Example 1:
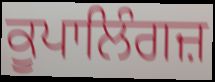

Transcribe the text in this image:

ਕੂਪਾਲਿੰਗਜ਼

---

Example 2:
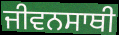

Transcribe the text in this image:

ਜੀਵਨਸਾਥੀ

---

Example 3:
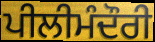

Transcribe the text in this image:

ਪੀਲੀਮੰਦੌਰੀ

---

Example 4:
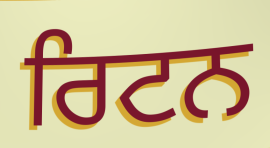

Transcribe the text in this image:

ਰਿਟਨ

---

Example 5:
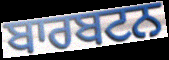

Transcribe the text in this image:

ਬਾਰਬਟਨ